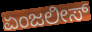
ಏಂಜಲೀಸ್